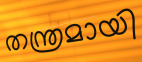
തന്ത്രമായി